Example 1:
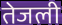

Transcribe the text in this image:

तेजली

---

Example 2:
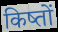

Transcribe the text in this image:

किष्तों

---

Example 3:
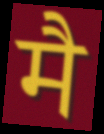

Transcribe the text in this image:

मै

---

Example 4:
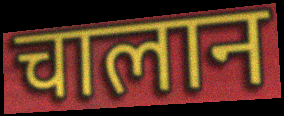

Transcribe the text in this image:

चालान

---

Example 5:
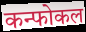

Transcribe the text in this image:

कन्फोकल